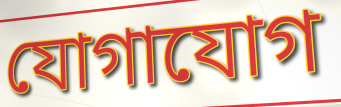
যোগাযোগ